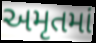
અમૃતમાં